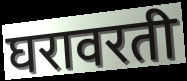
घरावरती